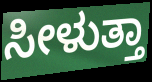
ಸೀಳುತ್ತಾ